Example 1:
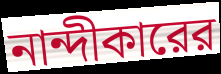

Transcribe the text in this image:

নান্দীকারের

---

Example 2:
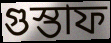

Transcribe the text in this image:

গুস্তাফ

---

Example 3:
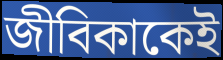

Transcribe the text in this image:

জীবিকাকেই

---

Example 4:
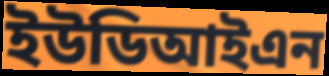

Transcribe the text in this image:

ইউডিআইএন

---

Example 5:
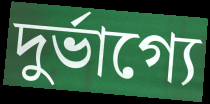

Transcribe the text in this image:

দুর্ভাগ্যে